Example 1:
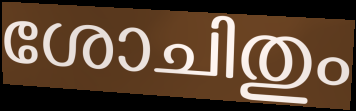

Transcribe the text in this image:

ശോചിതും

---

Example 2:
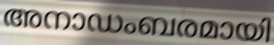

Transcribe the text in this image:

അനാഡംബരമായി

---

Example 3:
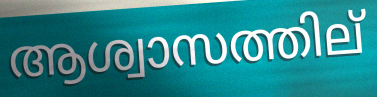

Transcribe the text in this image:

ആശ്വാസത്തില്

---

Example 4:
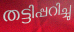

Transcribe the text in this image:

തട്ടിപ്പറിച്ചു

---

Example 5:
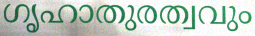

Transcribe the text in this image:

ഗൃഹാതുരത്വവും